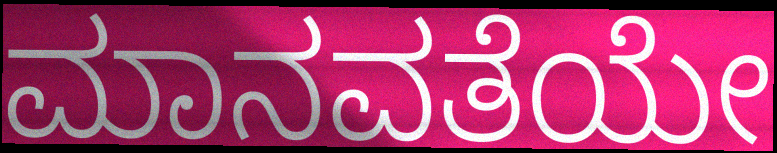
ಮಾನವತೆಯೇ